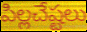
పిల్లచేష్టలు